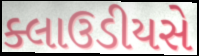
ક્લાઉડીયસે